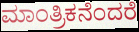
ಮಾಂತ್ರಿಕನೆಂದರೆ